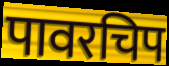
पावरचिप